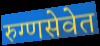
रुग्णसेवेत